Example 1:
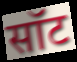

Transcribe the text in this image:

सॉट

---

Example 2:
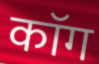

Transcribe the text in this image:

कॉग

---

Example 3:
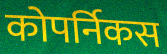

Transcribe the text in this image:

कोपर्निकस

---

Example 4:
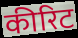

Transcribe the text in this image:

कीरिट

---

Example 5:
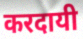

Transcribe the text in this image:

करदायी